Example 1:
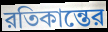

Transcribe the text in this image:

রতিকান্তের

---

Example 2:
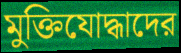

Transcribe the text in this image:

মুক্তিযোদ্ধাদের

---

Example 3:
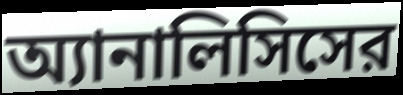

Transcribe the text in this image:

অ্যানালিসিসের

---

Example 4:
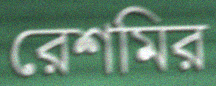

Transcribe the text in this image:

রেশমির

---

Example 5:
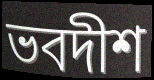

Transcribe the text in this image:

ভবদীশ